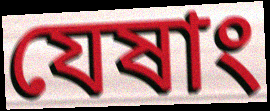
যেষাং